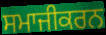
ਸਮਾਜੀਕਰਨ